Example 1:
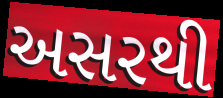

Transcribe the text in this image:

અસરથી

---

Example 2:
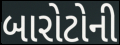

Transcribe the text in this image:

બારોટોની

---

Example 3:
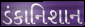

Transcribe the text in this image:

ડંકાનિશાન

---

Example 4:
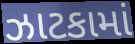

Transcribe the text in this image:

ઝાટકામાં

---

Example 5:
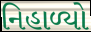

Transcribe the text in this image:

નિહાળ્યો